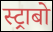
स्ट्राबो